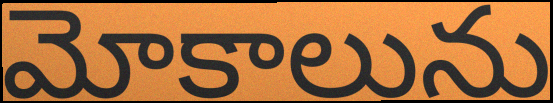
మోకాలును